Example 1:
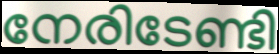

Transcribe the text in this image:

നേരിടേണ്ടി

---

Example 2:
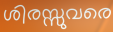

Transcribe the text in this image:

ശിരസ്സുവരെ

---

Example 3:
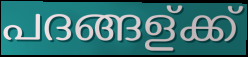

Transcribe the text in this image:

പദങ്ങള്ക്ക്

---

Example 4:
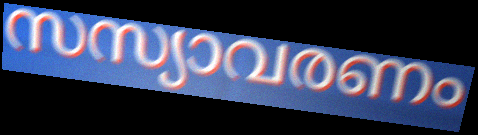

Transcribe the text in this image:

സസ്യാവരണം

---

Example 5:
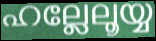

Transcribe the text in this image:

ഹല്ലേലൂയ്യ